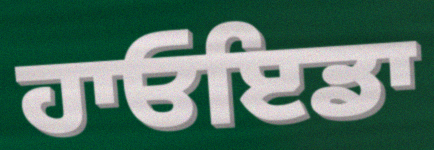
ਹਾਓਇਡਾ